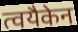
त्वयैकेन